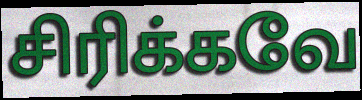
சிரிக்கவே